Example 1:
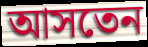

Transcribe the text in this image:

আসতেন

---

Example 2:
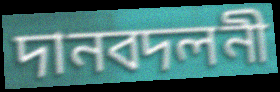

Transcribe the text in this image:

দানবদলনী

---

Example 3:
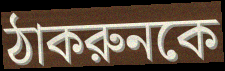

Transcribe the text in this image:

ঠাকরুনকে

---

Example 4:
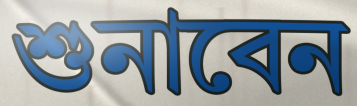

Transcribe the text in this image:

শুনাবেন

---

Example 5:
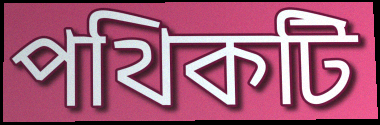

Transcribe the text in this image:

পথিকটি